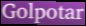
Golpotar